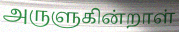
அருளுகின்றாள்